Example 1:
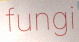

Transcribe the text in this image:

fungi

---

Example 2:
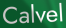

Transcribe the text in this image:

Calvel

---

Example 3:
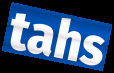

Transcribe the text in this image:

tahs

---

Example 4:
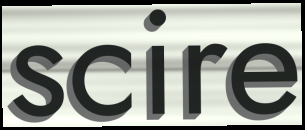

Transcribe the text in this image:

scire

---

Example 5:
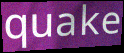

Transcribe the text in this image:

quake